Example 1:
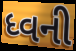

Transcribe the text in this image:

ધ્વની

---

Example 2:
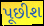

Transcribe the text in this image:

પૂછીશ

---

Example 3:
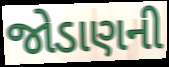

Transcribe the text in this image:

જોડાણની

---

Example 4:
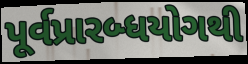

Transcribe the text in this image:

પૂર્વપ્રારબ્ધયોગથી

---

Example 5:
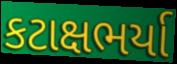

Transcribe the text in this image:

કટાક્ષભર્યા